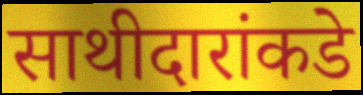
साथीदारांकडे